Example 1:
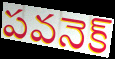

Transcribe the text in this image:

పవనెక్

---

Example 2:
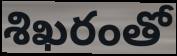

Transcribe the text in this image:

శిఖరంతో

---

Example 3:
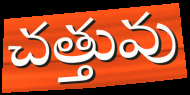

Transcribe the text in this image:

చత్తువు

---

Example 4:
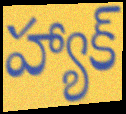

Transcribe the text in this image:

హ్యాక్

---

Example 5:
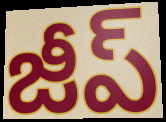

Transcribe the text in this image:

జీప్